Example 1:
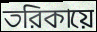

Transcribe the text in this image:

তরিকায়ে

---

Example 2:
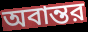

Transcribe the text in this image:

অবান্তর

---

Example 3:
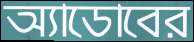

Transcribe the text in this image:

অ্যাডোবের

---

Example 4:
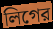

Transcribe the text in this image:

লিগের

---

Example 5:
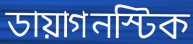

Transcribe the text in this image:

ডায়াগনস্টিক